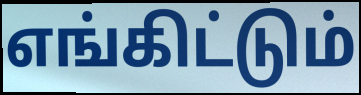
எங்கிட்டும்